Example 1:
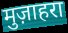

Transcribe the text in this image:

मुज़ाहरा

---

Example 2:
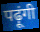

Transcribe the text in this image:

पढ़ूंगी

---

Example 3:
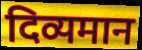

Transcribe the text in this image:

दिव्यमान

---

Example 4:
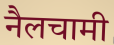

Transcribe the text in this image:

नैलचामी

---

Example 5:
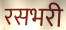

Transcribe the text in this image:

रसभरी